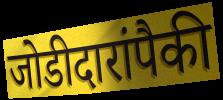
जोडीदारांपैकी